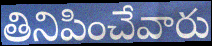
తినిపించేవారు